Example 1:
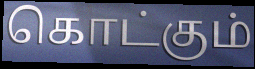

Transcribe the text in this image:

கொட்கும்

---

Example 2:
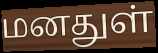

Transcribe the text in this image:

மனதுள்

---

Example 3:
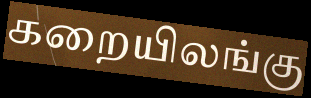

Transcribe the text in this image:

கறையிலங்கு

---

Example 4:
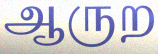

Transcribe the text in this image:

ஆருற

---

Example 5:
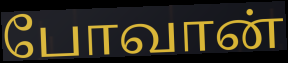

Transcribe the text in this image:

போவான்